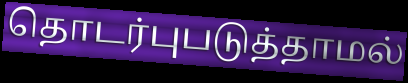
தொடர்புபடுத்தாமல்